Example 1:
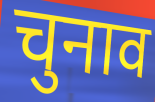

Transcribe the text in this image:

चुनाव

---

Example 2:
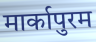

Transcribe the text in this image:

मार्कापुरम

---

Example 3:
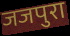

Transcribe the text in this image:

जजपुरा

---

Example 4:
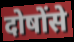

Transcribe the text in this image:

दोषोंसे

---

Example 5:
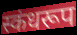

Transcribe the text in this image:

स्कंधरूप